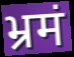
भ्रमं